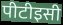
पीटीइसी